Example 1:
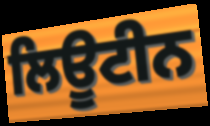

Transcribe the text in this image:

ਲਿਊਟੀਨ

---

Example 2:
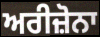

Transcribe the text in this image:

ਅਰੀਜ਼ੋਨਾ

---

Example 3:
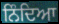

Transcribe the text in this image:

ਨਿੰਦਿਆ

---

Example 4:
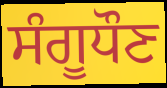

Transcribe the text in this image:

ਸੰਗੂਧੌਣ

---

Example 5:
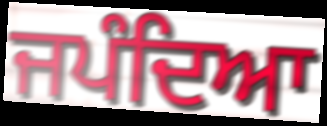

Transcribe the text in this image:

ਜਪੰਦਿਆ